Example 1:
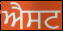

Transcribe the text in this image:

ਐਸਟ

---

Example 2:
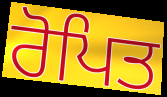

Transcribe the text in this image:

ਰੋਪਿਤ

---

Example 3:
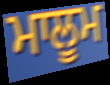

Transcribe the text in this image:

ਮਾਲੂਮ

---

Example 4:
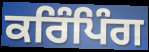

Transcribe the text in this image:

ਕਰਿੰਪਿੰਗ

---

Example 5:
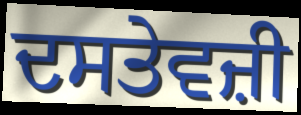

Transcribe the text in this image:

ਦਸਤੇਵਜ਼ੀ